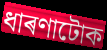
ধাৰণাটোক